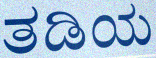
ತಡಿಯ